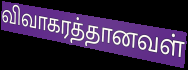
விவாகரத்தானவள்